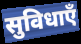
सुविधाएँ